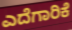
ಎದೆಗಾರಿಕೆ